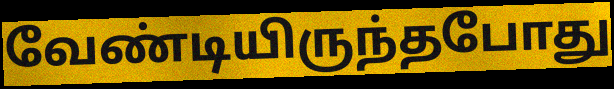
வேண்டியிருந்தபோது